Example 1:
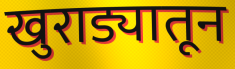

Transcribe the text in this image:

खुराड्यातून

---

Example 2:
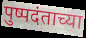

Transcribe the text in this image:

पुष्पदंताच्या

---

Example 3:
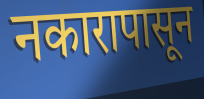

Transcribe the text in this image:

नकारापासून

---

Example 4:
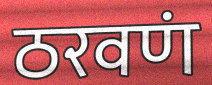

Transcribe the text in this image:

ठरवणं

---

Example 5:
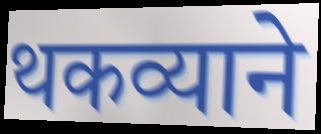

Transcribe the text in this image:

थकव्याने